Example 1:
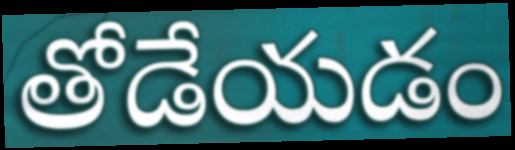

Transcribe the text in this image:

తోడేయడం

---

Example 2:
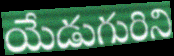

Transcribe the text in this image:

యేడుగురిని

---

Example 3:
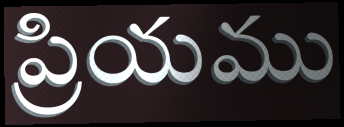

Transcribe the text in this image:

ప్రియము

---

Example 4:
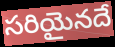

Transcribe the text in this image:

సరియైనదే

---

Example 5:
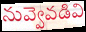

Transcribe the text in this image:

నువ్వెవడివి